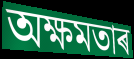
অক্ষমতাৰ